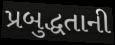
પ્રબુદ્ધતાની